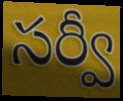
సర్వీ